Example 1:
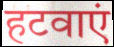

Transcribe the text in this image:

हटवाएं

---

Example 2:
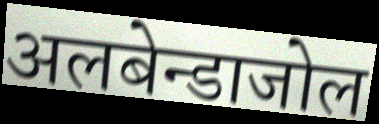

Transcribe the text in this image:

अलबेन्डाजोल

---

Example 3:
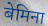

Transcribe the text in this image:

बेमिना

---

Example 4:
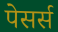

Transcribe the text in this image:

पेसर्स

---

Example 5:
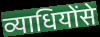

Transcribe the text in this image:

व्याधियोंसे